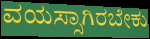
ವಯಸ್ಸಾಗಿರಬೇಕು